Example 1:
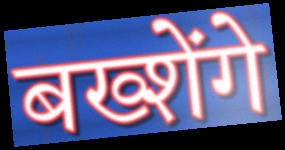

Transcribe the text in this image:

बख्शेंगे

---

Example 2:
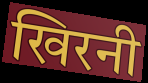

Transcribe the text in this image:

खिरनी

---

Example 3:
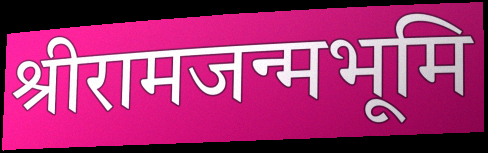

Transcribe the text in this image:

श्रीरामजन्मभूमि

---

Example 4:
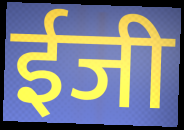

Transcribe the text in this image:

ईजी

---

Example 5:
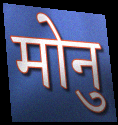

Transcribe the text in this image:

मोनु